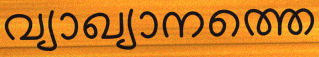
വ്യാഖ്യാനത്തെ